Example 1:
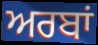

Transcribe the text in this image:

ਅਰਬਾਂ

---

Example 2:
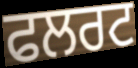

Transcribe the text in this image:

ਫਲਰਟ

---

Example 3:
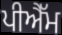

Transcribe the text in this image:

ਪੀਐੱਮ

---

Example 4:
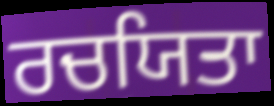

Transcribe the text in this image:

ਰਚਯਿਤਾ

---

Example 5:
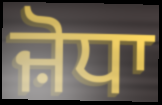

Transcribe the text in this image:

ਜ਼ੋਧਾ